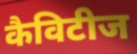
कैविटीज